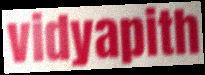
vidyapith